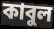
কাবুল